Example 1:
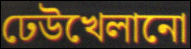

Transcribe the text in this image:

ঢেউখেলানো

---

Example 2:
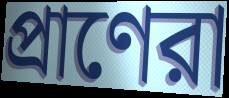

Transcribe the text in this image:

প্রাণেরা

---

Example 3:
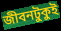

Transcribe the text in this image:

জীবনটুকুই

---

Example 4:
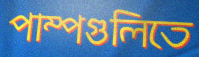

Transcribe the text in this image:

পাম্পগুলিতে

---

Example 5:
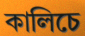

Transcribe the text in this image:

কালিচে